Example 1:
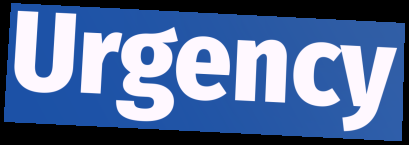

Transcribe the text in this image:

Urgency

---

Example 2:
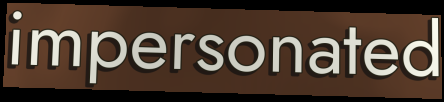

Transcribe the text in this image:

impersonated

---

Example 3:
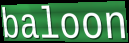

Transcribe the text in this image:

baloon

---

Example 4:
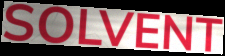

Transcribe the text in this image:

SOLVENT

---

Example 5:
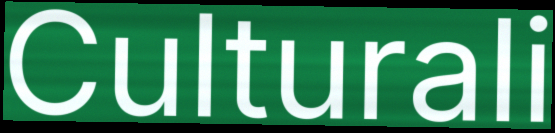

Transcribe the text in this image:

Culturali